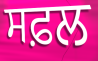
ਸਫ਼ਲ